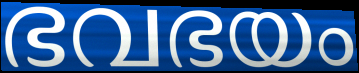
ഭവഭയം